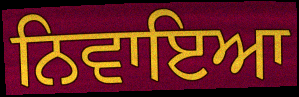
ਨਿਵਾਇਆ